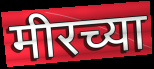
मीरच्या